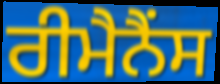
ਰੀਮੈਨੈਂਸ